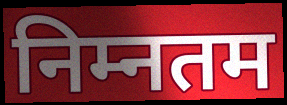
निम्नतम